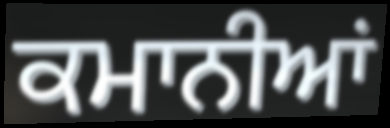
ਕਮਾਨੀਆਂ